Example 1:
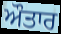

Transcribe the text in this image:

ਔਤਾਰ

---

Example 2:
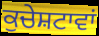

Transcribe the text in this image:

ਕੁਚੇਸ਼ਟਾਵਾਂ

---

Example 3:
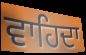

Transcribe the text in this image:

ਵਾਹਿਦਾ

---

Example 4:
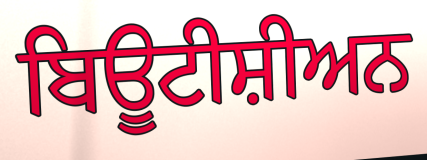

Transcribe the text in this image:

ਬਿਊਟੀਸ਼ੀਅਨ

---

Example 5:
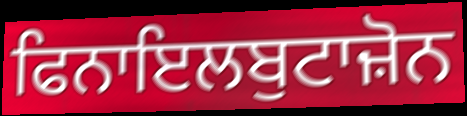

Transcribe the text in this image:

ਫਿਨਾਇਲਬੁਟਾਜ਼ੋਨ